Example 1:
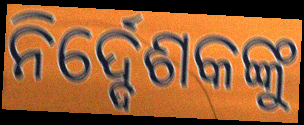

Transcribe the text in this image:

ନିର୍ଦ୍ଦେଶକଙ୍କୁ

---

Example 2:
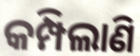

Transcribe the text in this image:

କମ୍ପିଲାଣି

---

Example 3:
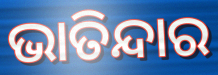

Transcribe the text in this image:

ଭାତିନ୍ଦାର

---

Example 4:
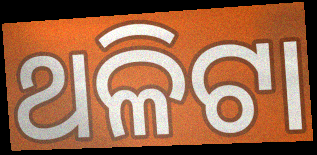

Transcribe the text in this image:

ଥଳିଟା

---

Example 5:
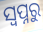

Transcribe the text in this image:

ସ୍ବପ୍ନରୁ